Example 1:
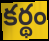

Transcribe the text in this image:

కర్థం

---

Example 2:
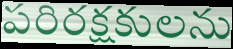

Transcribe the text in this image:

పరిరక్షకులను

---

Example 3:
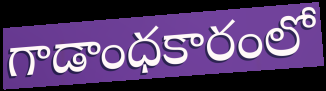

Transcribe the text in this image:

గాడాంధకారంలో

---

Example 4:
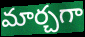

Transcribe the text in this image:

మార్చగా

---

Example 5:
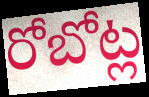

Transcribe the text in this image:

రోబోట్ల